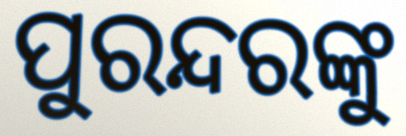
ପୁରନ୍ଦରଙ୍କୁ